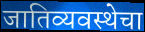
जातिव्यवस्थेचा